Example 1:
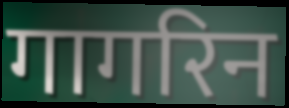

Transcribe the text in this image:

गागरिन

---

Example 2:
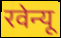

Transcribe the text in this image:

रवेन्यू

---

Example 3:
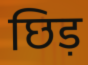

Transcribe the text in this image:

छिड़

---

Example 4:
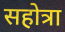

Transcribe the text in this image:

सहोत्रा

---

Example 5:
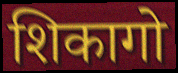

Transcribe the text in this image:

शिकागो